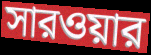
সারওয়ার